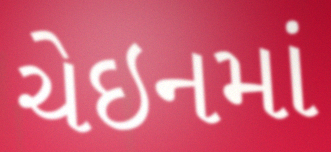
ચેઇનમાં